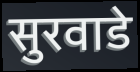
सुरवाडे